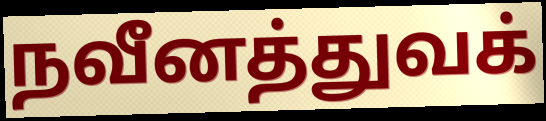
நவீனத்துவக்